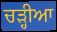
ਚੜ੍ਹੀਆ